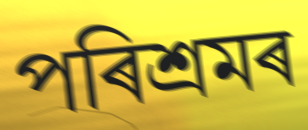
পৰিশ্ৰমৰ